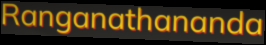
Ranganathananda